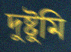
দুষ্টুমি